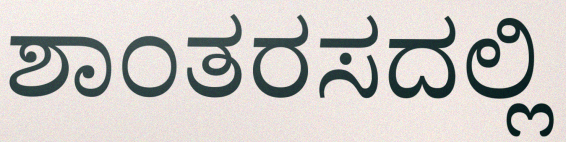
ಶಾಂತರಸದಲ್ಲಿ